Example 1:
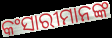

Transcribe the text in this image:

କଂସାରୀମାନଙ୍କ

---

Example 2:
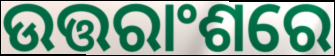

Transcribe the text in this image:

ଉତ୍ତରାଂଶରେ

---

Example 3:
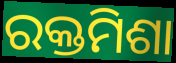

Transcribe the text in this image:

ରକ୍ତମିଶା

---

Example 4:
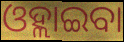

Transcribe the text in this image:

ଓହ୍ଲାଇବା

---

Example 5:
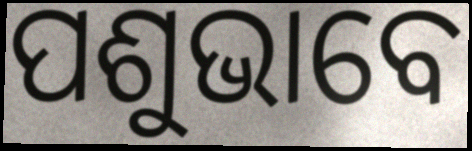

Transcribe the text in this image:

ପଶୁଭାବେ